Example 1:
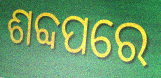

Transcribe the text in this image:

ଶବ୍ଦପରେ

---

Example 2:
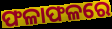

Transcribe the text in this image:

ଫଳାଫଳରେ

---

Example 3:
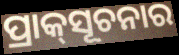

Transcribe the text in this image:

ପ୍ରାକ୍‌ସୂଚନାର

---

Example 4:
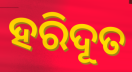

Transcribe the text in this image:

ହରିଦୂତ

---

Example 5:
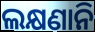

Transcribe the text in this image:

ଲକ୍ଷଣାନି